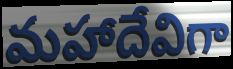
మహాదేవిగా